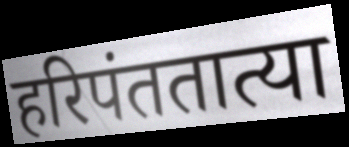
हरिपंततात्या